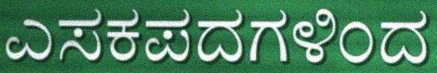
ಎಸಕಪದಗಳಿಂದ